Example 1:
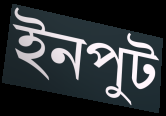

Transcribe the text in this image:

ইনপুট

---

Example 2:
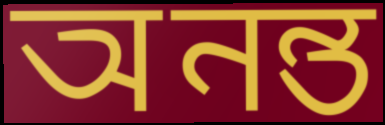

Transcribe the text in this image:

অনন্ত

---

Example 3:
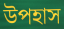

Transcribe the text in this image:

উপহাস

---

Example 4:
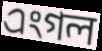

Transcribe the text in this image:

এংগল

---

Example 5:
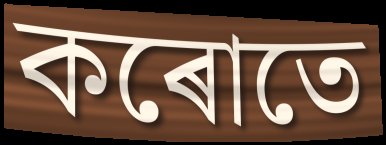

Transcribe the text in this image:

কৰোতে